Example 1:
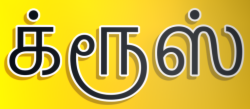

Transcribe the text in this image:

க்ரூஸ்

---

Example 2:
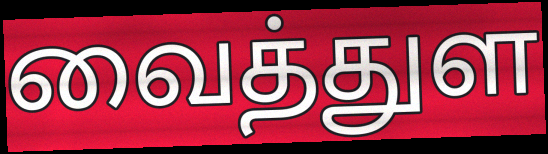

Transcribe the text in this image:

வைத்துள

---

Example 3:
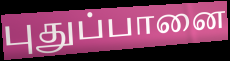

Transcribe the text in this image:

புதுப்பானை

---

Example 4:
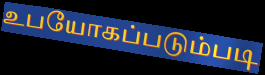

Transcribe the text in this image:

உபயோகப்படும்படி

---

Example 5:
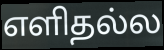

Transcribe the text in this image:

எளிதல்ல